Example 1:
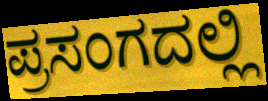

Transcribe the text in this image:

ಪ್ರಸಂಗದಲ್ಲಿ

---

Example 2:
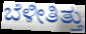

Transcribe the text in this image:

ಬೆಳೀತಿತ್ತು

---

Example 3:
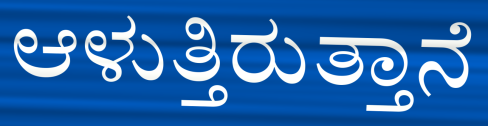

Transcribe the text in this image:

ಆಳುತ್ತಿರುತ್ತಾನೆ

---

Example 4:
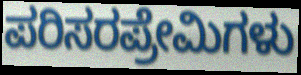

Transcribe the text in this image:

ಪರಿಸರಪ್ರೇಮಿಗಳು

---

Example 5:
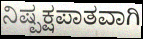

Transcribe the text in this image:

ನಿಷ್ಪಕ್ಷಪಾತವಾಗಿ